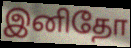
இனிதோ